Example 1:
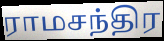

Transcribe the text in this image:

ராமசந்திர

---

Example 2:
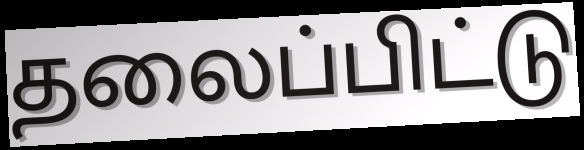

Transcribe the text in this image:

தலைப்பிட்டு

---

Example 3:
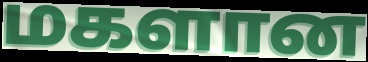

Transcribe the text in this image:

மகளான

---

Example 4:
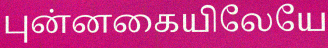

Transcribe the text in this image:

புன்னகையிலேயே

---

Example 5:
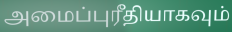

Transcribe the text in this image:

அமைப்புரீதியாகவும்